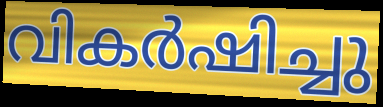
വികർഷിച്ചു